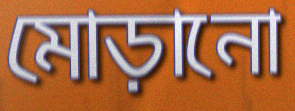
মোড়ানো